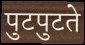
पुटपुटते